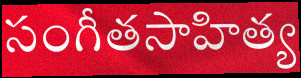
సంగీతసాహిత్య